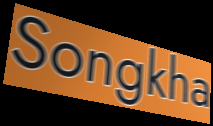
Songkha